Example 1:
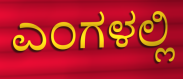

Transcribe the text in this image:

ಎಂಗಳಲ್ಲಿ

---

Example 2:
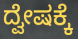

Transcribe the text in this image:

ದ್ವೇಷಕ್ಕೆ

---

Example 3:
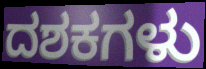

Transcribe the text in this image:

ದಶಕಗಳು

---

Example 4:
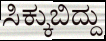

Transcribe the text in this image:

ಸಿಕ್ಕುಬಿದ್ದು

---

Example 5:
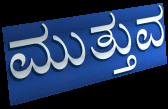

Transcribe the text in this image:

ಮುತ್ತುವ